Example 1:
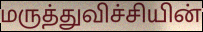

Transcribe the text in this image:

மருத்துவிச்சியின்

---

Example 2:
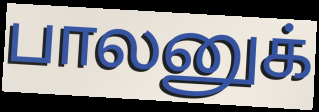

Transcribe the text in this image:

பாலனுக்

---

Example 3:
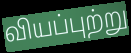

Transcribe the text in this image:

வியப்புற்று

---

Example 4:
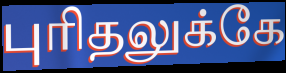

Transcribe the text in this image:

புரிதலுக்கே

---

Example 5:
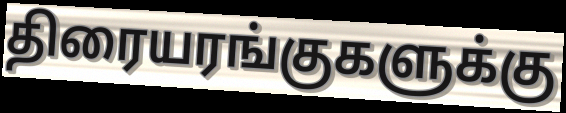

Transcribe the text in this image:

திரையரங்குகளுக்கு